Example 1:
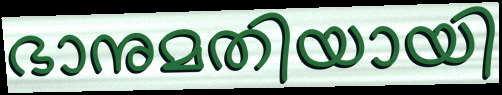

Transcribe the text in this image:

ഭാനുമതിയായി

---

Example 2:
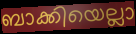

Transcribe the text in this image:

ബാക്കിയെല്ലാ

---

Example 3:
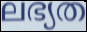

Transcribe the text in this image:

ലഭ്യത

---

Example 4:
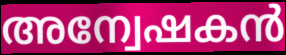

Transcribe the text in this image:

അന്വേഷകൻ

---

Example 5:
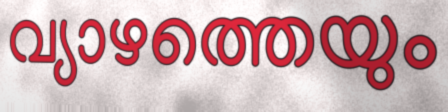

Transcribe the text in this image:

വ്യാഴത്തെയും